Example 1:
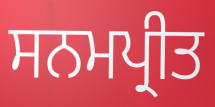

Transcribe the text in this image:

ਸਨਮਪ੍ਰੀਤ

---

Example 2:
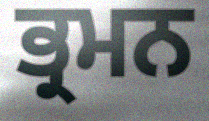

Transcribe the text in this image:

ਭ੍ਰਮਨ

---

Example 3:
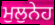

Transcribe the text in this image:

ਮੁਲੁਨੇਹ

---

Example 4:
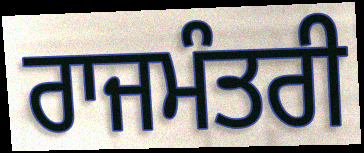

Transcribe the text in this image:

ਰਾਜਮੰਤਰੀ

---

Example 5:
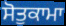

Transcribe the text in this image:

ਸੋਤੁਕਾਮਾ